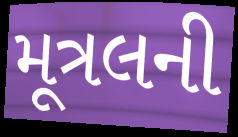
મૂત્રલની